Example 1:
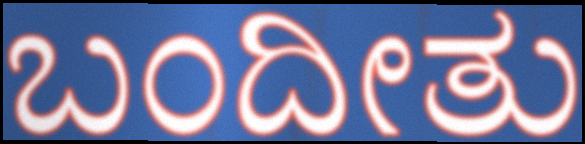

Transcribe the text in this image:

ಬಂದೀತು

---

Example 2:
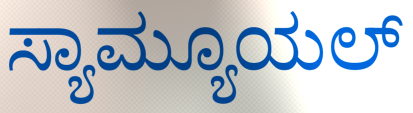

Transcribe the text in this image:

ಸ್ಯಾಮ್ಯೂಯಲ್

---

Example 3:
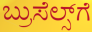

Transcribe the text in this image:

ಬ್ರುಸೆಲ್ಸ್‌ಗೆ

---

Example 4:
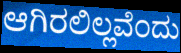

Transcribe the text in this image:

ಆಗಿರಲಿಲ್ಲವೆಂದು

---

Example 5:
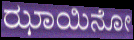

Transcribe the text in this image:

ಝಾಯಿನೋ